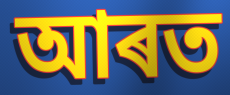
আৰত